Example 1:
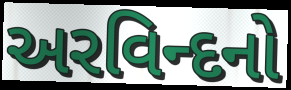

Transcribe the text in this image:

અરવિન્દનો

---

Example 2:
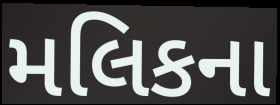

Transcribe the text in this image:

મલિકના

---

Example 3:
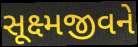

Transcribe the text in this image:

સૂક્ષ્મજીવને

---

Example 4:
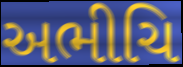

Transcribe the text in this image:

અભીચિ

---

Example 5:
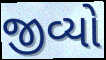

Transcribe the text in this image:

જીવ્યો